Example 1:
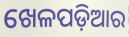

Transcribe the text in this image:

ଖେଳପଡ଼ିଆର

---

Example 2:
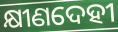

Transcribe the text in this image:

କ୍ଷୀଣଦେହୀ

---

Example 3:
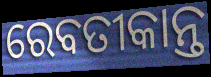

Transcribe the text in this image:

ରେବତୀକାନ୍ତ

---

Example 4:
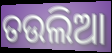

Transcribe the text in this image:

ତଉଲିଆ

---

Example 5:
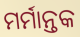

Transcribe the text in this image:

ମର୍ମାନ୍ତକ